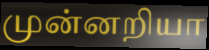
முன்னறியா